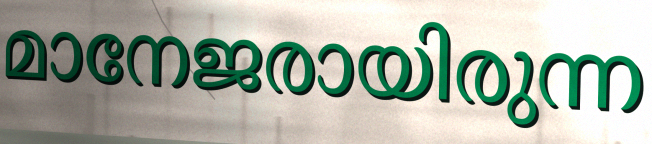
മാനേജരായിരുന്ന